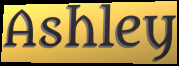
Ashley